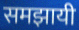
समझायी